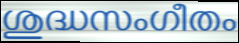
ശുദ്ധസംഗീതം